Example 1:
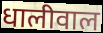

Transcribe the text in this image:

धालीवाल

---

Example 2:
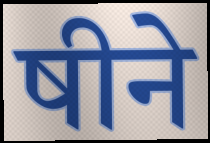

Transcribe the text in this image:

षीने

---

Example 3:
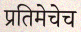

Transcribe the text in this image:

प्रतिमेचेच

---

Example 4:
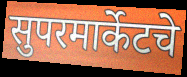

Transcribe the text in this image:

सुपरमार्केटचे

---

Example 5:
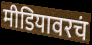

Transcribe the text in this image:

मीडियावरचं